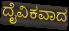
ದೈವಿಕವಾದ